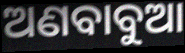
ଅଣବାବୁଆ